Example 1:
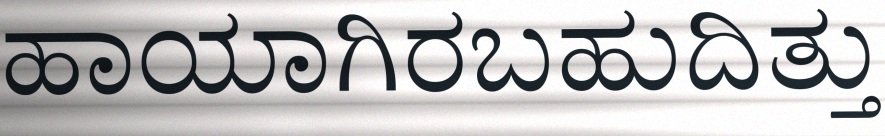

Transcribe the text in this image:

ಹಾಯಾಗಿರಬಹುದಿತ್ತು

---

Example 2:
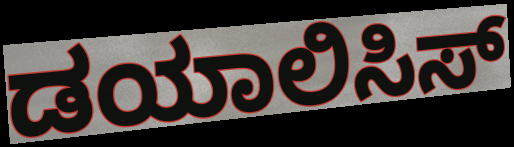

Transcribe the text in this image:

ಡಯಾಲಿಸಿಸ್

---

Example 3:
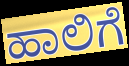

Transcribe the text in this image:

ಹಾಲಿಗೆ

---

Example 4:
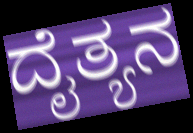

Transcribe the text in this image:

ದೈತ್ಯನ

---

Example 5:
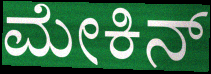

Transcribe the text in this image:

ಮೇಕಿನ್